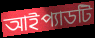
আইপ্যাডটি